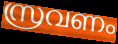
സ്രവണം